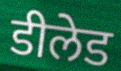
डीलेड